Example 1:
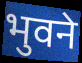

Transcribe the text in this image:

भुवने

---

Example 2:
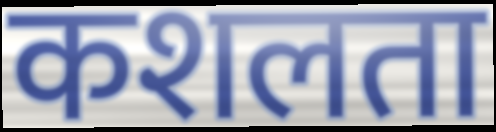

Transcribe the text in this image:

कशलता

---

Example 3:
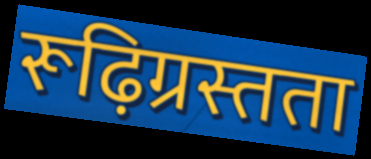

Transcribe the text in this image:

रूढ़िग्रस्तता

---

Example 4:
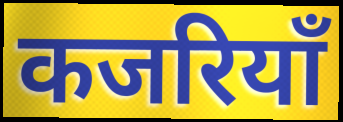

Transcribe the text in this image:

कजरियाँ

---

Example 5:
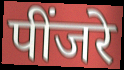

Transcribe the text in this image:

पींजरे